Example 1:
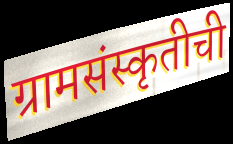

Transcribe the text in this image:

ग्रामसंस्कृतीची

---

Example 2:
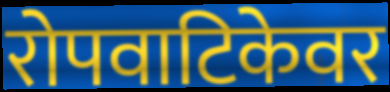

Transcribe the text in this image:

रोपवाटिकेवर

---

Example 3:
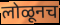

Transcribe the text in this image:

लोळूनच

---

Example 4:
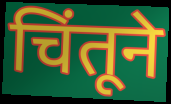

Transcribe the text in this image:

चिंतूने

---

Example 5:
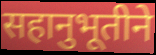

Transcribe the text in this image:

सहानुभूतीने